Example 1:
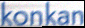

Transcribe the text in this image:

konkan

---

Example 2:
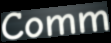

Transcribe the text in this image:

Comm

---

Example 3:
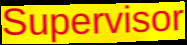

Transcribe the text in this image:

Supervisor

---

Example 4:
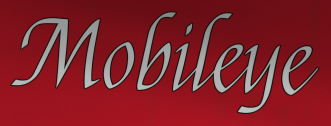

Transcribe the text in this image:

Mobileye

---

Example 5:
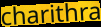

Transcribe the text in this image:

charithra